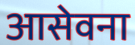
आसेवना